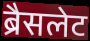
ब्रैसलेट